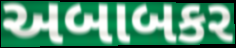
અબાબકર